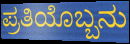
ಪ್ರತಿಯೊಬ್ಬನು